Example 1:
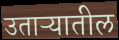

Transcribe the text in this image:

उताऱ्यातील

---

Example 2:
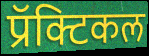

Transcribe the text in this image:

प्रॅक्टिकल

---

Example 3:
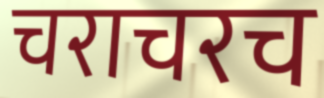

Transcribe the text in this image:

चराचरच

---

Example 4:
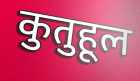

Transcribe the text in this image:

कुतुहूल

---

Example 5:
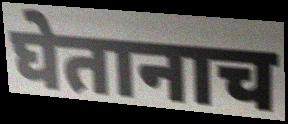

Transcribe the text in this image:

घेतानाच